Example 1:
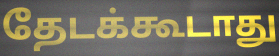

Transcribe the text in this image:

தேடக்கூடாது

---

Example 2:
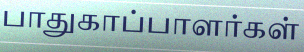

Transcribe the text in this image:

பாதுகாப்பாளர்கள்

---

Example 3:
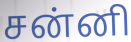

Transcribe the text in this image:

சன்னி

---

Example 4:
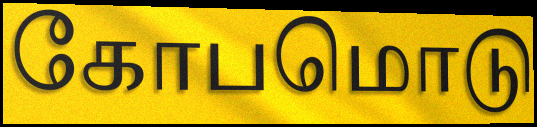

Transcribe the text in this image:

கோபமொடு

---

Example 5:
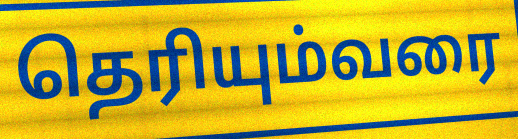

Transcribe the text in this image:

தெரியும்வரை